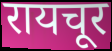
रायचूर